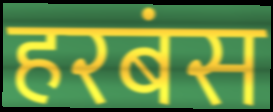
हरबंस